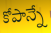
కోపాన్నే